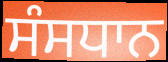
ਸੰਸਧਾਨ